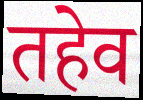
तहेव